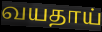
வயதாய்